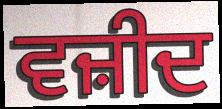
ਵਜ਼ੀਦ